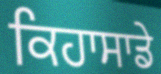
ਕਿਹਾਸਾਡੇ